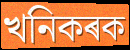
খনিকৰক